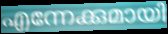
എന്നേക്കുമായി